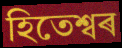
হিতেশ্বৰ